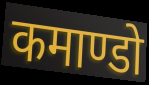
कमाण्डो